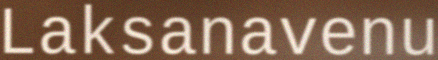
Laksanavenu